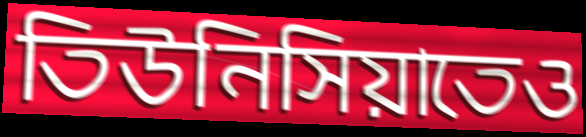
তিউনিসিয়াতেও